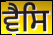
ਵੈਸਿ